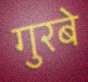
गुरबे